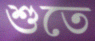
শুতে